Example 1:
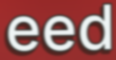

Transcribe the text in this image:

eed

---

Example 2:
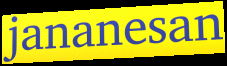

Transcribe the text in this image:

jananesan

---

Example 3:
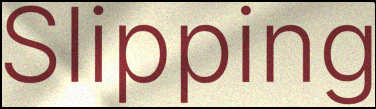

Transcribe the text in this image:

Slipping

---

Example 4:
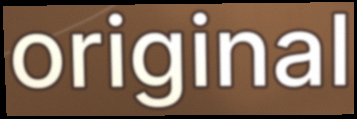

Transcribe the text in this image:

original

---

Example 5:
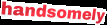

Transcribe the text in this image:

handsomely